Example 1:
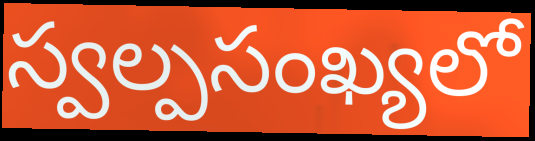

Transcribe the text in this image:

స్వల్పసంఖ్యలో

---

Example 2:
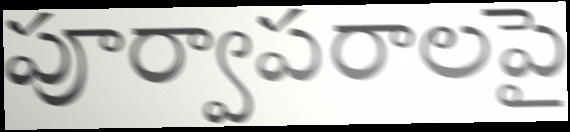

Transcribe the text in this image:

పూర్వాపరాలపై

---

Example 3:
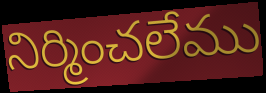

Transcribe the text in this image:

నిర్మించలేము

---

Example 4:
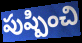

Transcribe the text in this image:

పుష్పించి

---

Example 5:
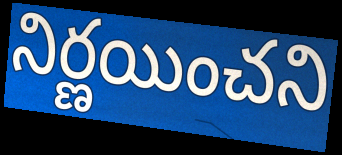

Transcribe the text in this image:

నిర్ణయించని